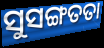
ସୁସଙ୍ଗତତା